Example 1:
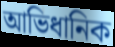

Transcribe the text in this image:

আভিধানিক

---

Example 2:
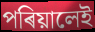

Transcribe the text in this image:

পৰিয়ালেই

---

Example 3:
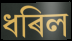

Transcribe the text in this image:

ধৰিল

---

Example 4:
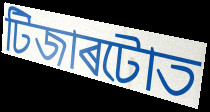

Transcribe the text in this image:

টিজাৰটোত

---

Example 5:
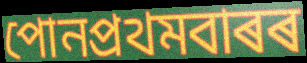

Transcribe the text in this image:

পোনপ্ৰথমবাৰৰ